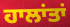
ਹਾਲਾਂਤਾਂ